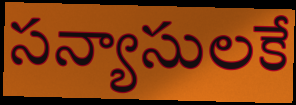
సన్యాసులకే